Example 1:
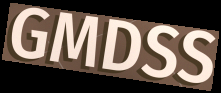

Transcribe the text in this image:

GMDSS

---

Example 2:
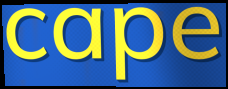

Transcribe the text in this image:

cape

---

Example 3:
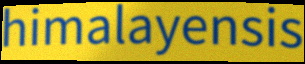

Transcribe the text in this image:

himalayensis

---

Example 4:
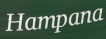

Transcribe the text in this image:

Hampana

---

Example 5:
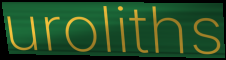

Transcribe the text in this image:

uroliths